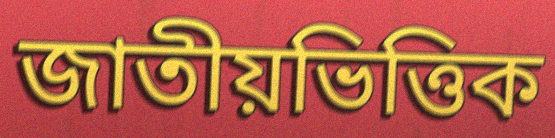
জাতীয়ভিত্তিক